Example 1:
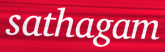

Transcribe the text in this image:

sathagam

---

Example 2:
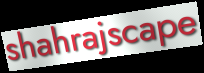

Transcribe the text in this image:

shahrajscape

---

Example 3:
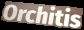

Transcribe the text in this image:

Orchitis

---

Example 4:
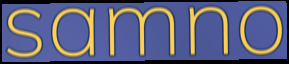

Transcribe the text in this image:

samno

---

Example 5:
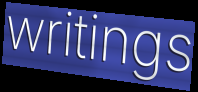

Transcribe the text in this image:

writings